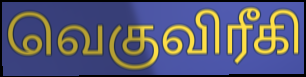
வெகுவிரீகி